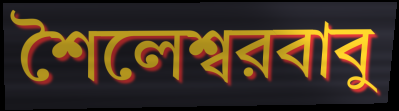
শৈলেশ্বরবাবু